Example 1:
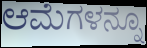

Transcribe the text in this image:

ಆಮೆಗಳನ್ನೂ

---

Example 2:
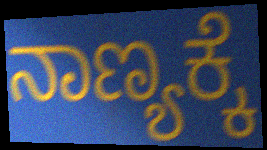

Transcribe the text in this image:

ನಾಣ್ಯಕ್ಕೆ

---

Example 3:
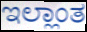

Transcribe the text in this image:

ಇಲ್ಲಾಂತ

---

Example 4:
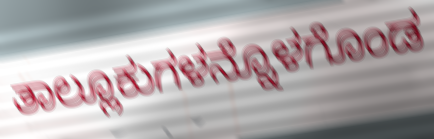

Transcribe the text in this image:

ತಾಲ್ಲೂಕುಗಳನ್ನೊಳಗೊಂಡ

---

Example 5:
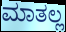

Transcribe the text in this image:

ಮಾತಲ್ಲ